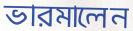
ভারমালেন